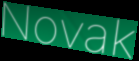
Novak